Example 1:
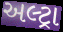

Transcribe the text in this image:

અલ્ટ્રા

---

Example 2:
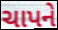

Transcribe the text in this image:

ચાપને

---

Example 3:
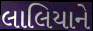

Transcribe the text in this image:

લાલિયાને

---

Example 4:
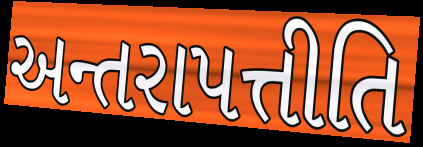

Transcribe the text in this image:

અન્તરાપત્તીતિ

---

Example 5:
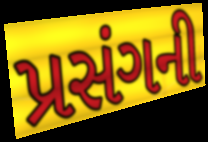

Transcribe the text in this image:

પ્રસંગની